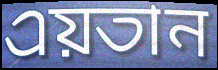
এয়তান